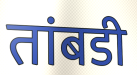
तांबडी